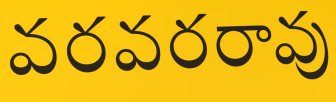
వరవరరావు